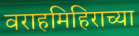
वराहमिहिराच्या